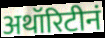
अथॉरिटीनं